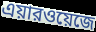
এয়ারওয়েজে